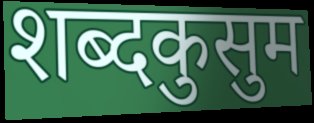
शब्दकुसुम